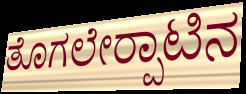
ತೊಗಲೇರ‍್ಪಾಟಿನ